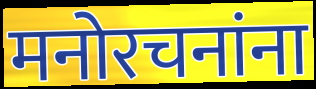
मनोरचनांना